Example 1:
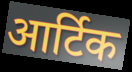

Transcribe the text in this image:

आर्टिक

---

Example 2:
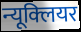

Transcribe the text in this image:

न्‍यूक्‍लियर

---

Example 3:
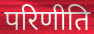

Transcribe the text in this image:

परिणीति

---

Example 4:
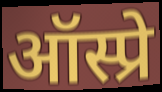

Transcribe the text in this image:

ऑस्प्रे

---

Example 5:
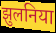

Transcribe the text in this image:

झुलनिया